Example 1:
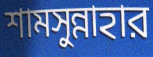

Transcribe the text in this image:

শামসুন্নাহার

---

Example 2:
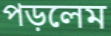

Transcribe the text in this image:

পড়লেম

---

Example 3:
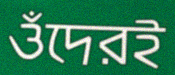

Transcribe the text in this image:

ওঁদেরই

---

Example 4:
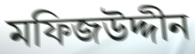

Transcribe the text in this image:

মফিজউদ্দীন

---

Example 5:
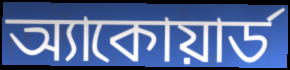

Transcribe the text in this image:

অ্যাকোয়ার্ড